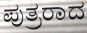
ಪುತ್ರರಾದ